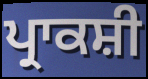
ਪ੍ਰਾਕਸ਼ੀ